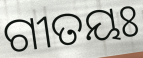
ଗୀତୟଃ